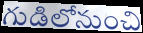
గుడిలోనుంచి